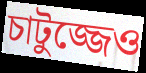
চাটুজ্জেও